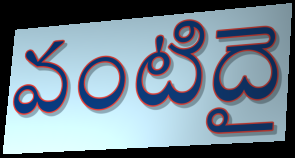
వంటిదై